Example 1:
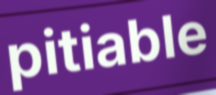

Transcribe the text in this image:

pitiable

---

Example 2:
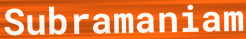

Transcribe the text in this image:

Subramaniam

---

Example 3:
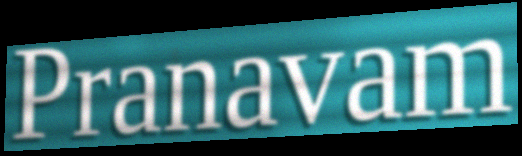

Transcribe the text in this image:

Pranavam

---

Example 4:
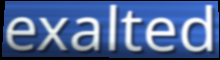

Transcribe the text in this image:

exalted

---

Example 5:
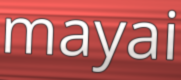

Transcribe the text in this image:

mayai